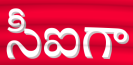
సీఐగా